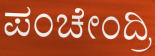
ಪಂಚೇಂದ್ರಿ